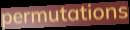
permutations